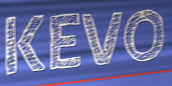
KEVO